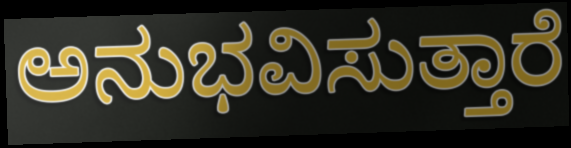
ಅನುಭವಿಸುತ್ತಾರೆ